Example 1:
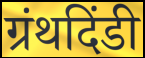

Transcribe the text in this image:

ग्रंथदिंडी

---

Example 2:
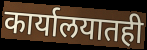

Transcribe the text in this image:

कार्यालयातही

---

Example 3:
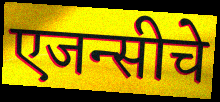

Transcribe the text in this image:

एजन्सीचे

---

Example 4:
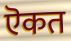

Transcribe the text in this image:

ऎकत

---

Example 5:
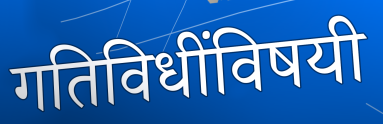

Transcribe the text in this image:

गतिविधींविषयी